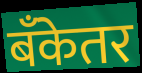
बँकेतर